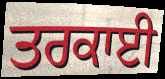
ਤਰਕਾਈ